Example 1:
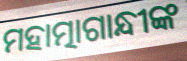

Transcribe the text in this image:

ମହାତ୍ମାଗାନ୍ଧୀଙ୍କ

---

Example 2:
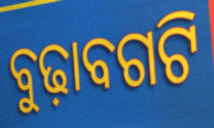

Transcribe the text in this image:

ବୁଢ଼ାବଗଟି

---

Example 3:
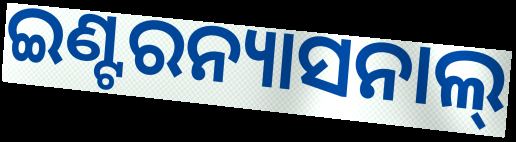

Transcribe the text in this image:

ଇଣ୍ଟରନ୍ୟାସନାଲ୍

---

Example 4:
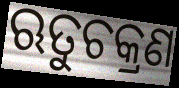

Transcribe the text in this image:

ଋତୁଚକ୍ରଣ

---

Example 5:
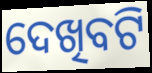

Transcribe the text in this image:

ଦେଖିବଟି